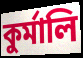
কুৰ্মালি